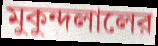
মুকুন্দলালের